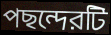
পছন্দেরটি